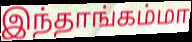
இந்தாங்கம்மா